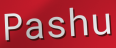
Pashu